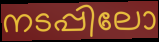
നടപ്പിലോ